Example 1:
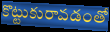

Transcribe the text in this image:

కొట్టుకురావడంతో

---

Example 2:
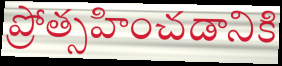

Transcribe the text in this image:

ప్రోత్సహించడానికి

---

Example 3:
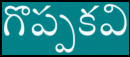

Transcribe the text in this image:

గొప్పకవి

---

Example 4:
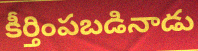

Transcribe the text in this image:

కీర్తింపబడినాడు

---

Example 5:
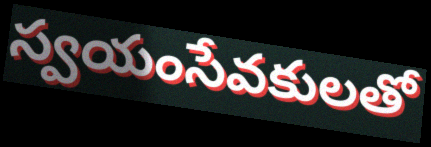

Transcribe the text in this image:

స్వయంసేవకులతో